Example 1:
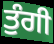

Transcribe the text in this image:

ਤੁੰਗੀ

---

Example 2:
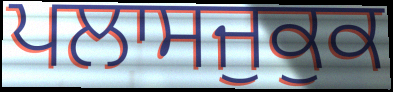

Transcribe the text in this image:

ਪਲਾਸਜੁਕੁਕ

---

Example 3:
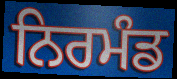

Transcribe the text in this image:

ਨਿਰਮੰਡ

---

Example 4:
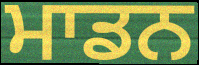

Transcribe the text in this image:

ਮਾਡਨ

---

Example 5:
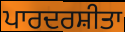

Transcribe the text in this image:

ਪਾਰਦਰਸ਼ੀਤਾ